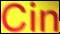
Cin